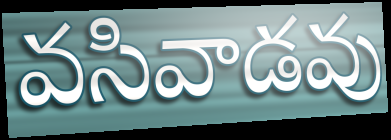
వసివాడవు